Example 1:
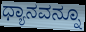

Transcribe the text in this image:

ಧ್ಯಾನವನ್ನೂ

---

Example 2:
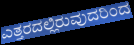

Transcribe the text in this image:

ಎತ್ತರದಲ್ಲಿರುವುದರಿಂದ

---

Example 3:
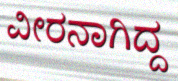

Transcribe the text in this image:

ವೀರನಾಗಿದ್ದ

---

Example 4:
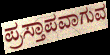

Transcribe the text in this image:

ಪ್ರಸ್ತಾಪವಾಗುವ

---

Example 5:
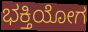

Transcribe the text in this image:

ಭಕ್ತಿಯೋಗ